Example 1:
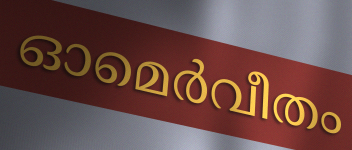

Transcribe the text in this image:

ഓമെർവീതം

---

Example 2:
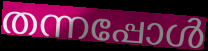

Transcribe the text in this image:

തന്നപ്പോൾ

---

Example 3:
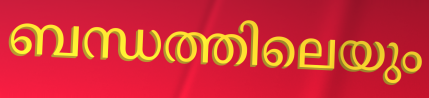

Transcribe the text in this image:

ബന്ധത്തിലെയും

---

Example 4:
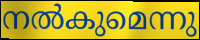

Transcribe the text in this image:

നൽകുമെന്നു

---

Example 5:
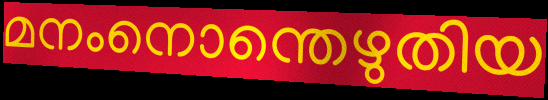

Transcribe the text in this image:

മനംനൊന്തെഴുതിയ